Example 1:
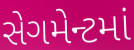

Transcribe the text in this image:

સેગમેન્ટમાં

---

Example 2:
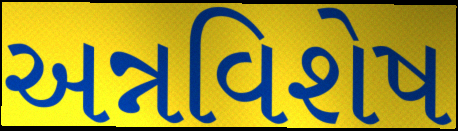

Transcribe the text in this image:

અન્નવિશેષ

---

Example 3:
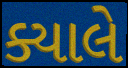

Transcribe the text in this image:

ક્યાલે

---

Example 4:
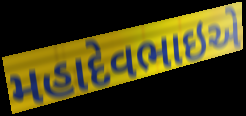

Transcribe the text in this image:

મહાદેવભાઇએ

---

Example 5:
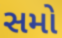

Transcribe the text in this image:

સમો